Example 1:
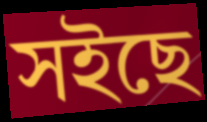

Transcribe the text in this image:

সইছে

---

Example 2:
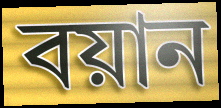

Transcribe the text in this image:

বয়ান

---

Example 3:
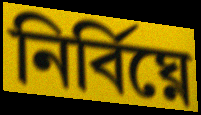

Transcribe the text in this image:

নির্বিঘ্নে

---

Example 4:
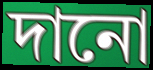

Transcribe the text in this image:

দানো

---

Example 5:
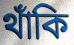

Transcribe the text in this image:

থাঁকি